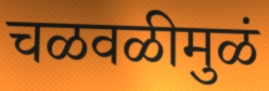
चळवळीमुळं